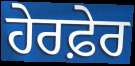
ਹੇਰਫ਼ੇਰ